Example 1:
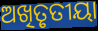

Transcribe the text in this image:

ଅଖିତୃତୀୟା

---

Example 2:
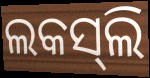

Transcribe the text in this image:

ଲକସ୍‍ଲି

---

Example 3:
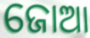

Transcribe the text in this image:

ଜୋଆ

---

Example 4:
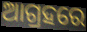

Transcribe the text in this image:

ଆଗ୍ରହରେ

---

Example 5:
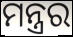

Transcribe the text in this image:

ମନ୍ତ୍ରର